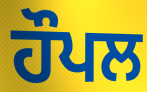
ਹੌਪਲ